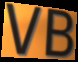
VB